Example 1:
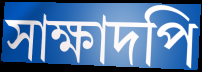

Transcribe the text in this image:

সাক্ষাদপি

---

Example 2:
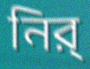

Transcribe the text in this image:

নির্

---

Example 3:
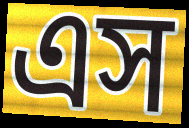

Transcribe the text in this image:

এস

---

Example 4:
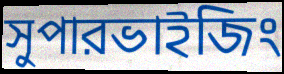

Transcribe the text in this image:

সুপারভাইজিং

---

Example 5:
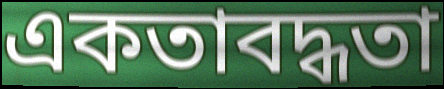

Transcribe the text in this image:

একতাবদ্ধতা